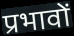
प्रभावों